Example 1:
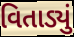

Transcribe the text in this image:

વિતાડ્યું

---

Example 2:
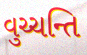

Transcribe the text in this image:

વુચ્ચન્તિ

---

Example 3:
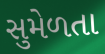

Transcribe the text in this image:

સુમેળતા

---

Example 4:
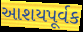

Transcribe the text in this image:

આશયપૂર્વક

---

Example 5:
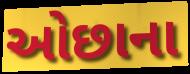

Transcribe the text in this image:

ઓછાના